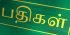
பதிகள்